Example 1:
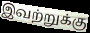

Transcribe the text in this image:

இவற்றுக்கு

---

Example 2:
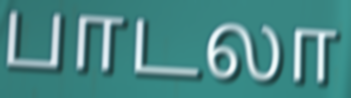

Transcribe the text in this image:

பாடலா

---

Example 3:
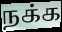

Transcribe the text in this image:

நக்க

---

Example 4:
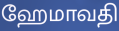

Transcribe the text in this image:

ஹேமாவதி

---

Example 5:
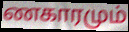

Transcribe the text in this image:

ணகாரமும்